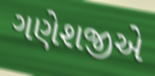
ગણેશજીએ